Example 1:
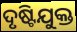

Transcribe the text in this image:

ଦୃଷ୍ଟିଯୁକ୍ତ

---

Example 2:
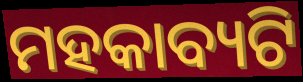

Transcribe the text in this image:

ମହକାବ୍ୟଟି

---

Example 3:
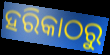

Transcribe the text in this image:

ହରିକାଠରୁ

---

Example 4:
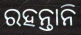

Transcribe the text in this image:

ରହନ୍ତାନି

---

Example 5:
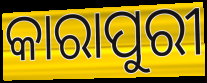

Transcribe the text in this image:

କାରାପୁରୀ